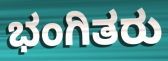
ಭಂಗಿತರು